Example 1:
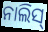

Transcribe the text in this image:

ନାଲିସ୍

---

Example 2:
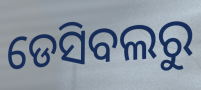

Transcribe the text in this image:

ଡେସିବଲରୁ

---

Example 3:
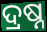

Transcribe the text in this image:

ଦ୍ରଷ୍ନ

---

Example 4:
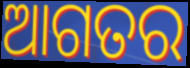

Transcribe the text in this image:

ଆଗତର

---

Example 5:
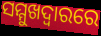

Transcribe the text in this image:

ସମ୍ମୁଖଦ୍ୱାରରେ